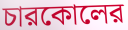
চারকোলের